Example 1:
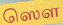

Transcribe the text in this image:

ஸௌ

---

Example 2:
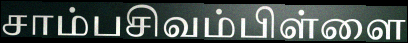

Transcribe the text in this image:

சாம்பசிவம்பிள்ளை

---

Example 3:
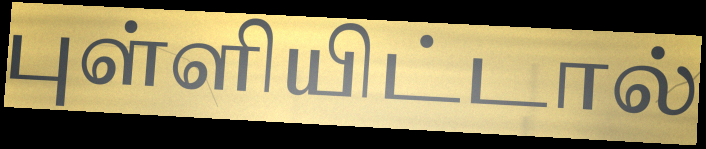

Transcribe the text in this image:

புள்ளியிட்டால்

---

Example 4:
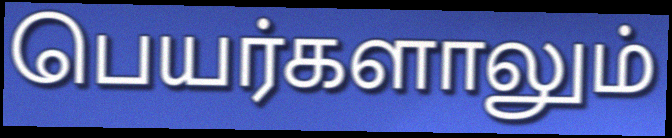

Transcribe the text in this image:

பெயர்களாலும்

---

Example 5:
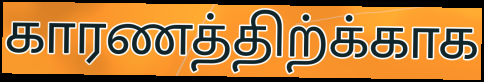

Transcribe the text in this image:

காரணத்திற்க்காக